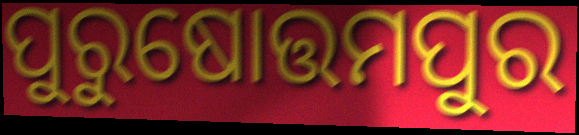
ପୁରୁଷୋତ୍ତମପୁର